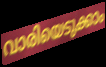
വാരിയെടുക്കാം